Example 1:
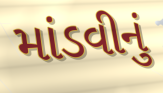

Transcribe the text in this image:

માંડવીનું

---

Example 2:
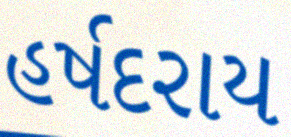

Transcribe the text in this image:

હર્ષદરાય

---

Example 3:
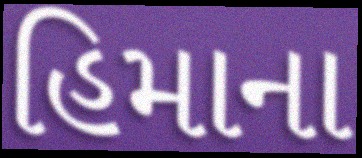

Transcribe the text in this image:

હિમાના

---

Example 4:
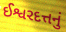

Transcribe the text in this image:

ઈશ્વરદત્તનું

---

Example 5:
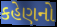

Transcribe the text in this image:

કહેણનો